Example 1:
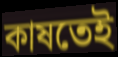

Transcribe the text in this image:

কাষতেই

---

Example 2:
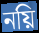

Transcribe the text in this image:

নয়ি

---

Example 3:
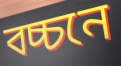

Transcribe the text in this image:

বচ্চনে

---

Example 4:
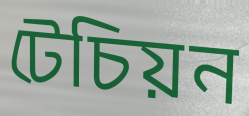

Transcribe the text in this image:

টেচিয়ন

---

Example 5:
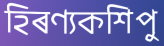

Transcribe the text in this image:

হিৰণ্যকশিপু